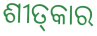
ଶୀତ୍‌କାର